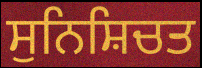
ਸੁਨਿਸ਼ਿਚਤ